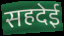
सहदेई